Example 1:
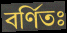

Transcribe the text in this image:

বর্ণিতঃ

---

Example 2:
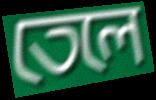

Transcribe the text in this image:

তেলে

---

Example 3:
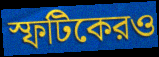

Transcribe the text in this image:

স্ফটিকেরও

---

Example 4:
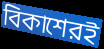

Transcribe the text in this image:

বিকাশেরই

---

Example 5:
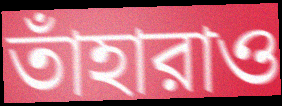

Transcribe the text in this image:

তাঁহারাও